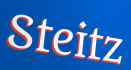
Steitz